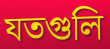
যতগুলি